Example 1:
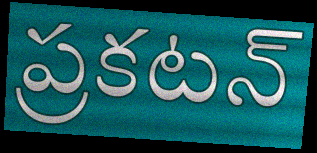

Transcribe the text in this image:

ప్రకటన్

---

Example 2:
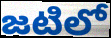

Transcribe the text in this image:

జటిలో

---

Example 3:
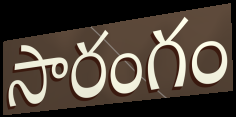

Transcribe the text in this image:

సారంగం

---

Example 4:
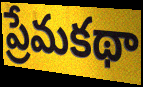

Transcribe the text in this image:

ప్రేమకథా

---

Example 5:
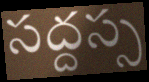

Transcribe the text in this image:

సద్దస్స